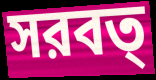
সরবত্